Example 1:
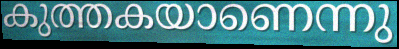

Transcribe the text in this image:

കുത്തകയാണെന്നു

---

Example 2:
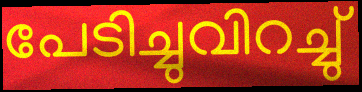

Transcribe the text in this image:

പേടിച്ചുവിറച്ചു്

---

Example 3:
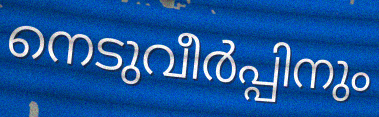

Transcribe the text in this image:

നെടുവീർപ്പിനും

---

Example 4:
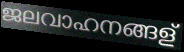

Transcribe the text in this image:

ജലവാഹനങ്ങള്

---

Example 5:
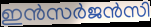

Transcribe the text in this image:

ഇൻസർജൻസി